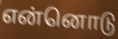
என்னொடு